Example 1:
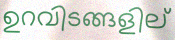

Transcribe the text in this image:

ഉറവിടങ്ങളില്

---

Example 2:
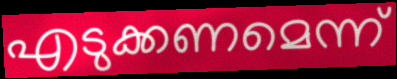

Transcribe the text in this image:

എടുക്കണമെന്ന്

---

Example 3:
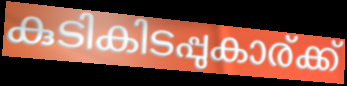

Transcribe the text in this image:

കുടികിടപ്പുകാര്ക്ക്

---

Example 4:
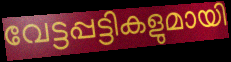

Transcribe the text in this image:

വേട്ടപ്പട്ടികളുമായി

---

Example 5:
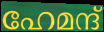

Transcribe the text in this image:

ഹേമന്ദ്